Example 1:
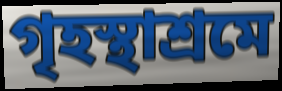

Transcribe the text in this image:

গৃহস্থাশ্রমে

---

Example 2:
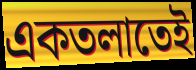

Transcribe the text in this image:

একতলাতেই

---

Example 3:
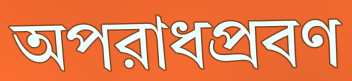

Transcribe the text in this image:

অপরাধপ্রবণ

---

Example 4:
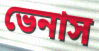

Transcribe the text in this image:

ভেনাস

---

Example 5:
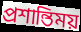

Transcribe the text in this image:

প্রশান্তিময়